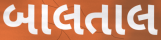
બાલતાલ